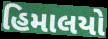
હિમાલયો